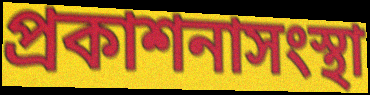
প্রকাশনাসংস্থা